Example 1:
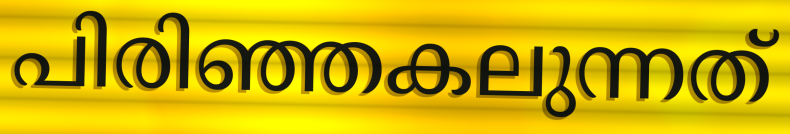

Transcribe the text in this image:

പിരിഞ്ഞകലുന്നത്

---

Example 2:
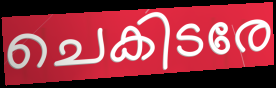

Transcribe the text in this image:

ചെകിടരേ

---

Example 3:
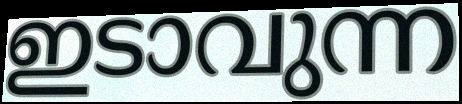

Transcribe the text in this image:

ഇടാവുന്ന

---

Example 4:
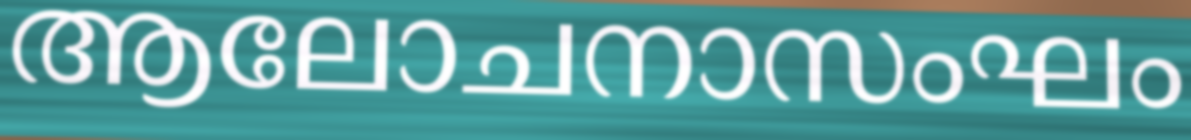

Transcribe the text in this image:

ആലോചനാസംഘം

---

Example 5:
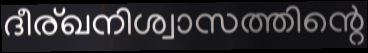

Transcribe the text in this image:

ദീര്ഖനിശ്വാസത്തിന്റെ